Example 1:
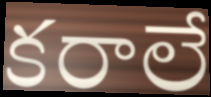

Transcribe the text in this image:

కరాలే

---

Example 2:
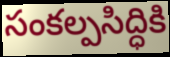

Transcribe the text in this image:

సంకల్పసిద్ధికి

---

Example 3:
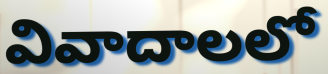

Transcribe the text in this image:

వివాదాలలో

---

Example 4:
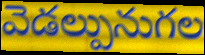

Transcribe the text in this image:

వెడల్పునుగల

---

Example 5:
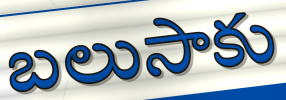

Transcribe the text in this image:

బలుసాకు